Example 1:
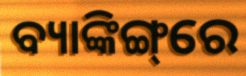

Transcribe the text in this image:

ବ୍ୟାଙ୍କିଙ୍ଗ୍‌ରେ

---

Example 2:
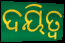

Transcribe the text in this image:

ଦୟିତ୍ୱ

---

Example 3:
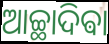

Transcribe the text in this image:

ଆଚ୍ଛାଦିଵା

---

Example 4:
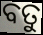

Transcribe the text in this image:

ବତୁ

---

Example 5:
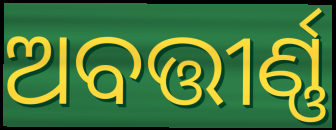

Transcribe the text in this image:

ଅବତ୍ତୀର୍ଣ୍ଣ